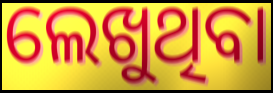
ଲେଖୁଥିବା